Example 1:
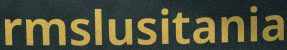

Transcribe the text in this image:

rmslusitania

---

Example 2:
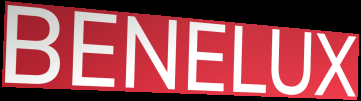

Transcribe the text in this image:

BENELUX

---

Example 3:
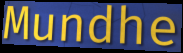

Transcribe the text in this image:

Mundhe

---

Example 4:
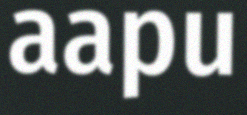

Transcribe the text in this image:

aapu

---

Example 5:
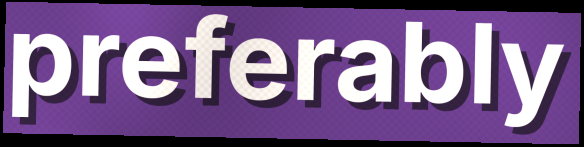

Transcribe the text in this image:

preferably